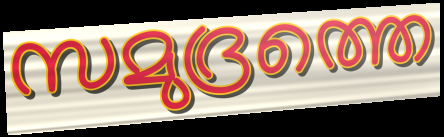
സമുദ്രത്തെ